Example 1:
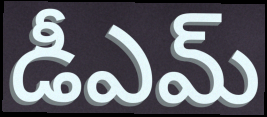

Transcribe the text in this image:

డీఎమ్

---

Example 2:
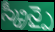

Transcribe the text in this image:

స్క్రీన్పై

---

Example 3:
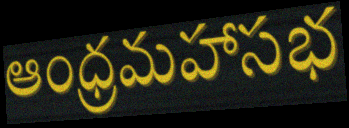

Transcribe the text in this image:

ఆంధ్రమహాసభ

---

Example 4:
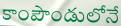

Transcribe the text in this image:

కాంపౌండులోనే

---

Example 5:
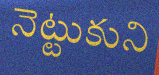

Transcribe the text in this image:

నెట్టుకుని